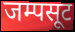
जम्पसूट